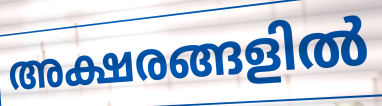
അക്ഷരങ്ങളിൽ